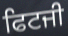
ਫਿਟਜੀ